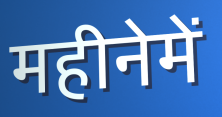
महीनेमें